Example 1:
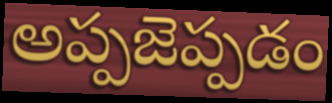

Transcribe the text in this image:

అప్పజెప్పడం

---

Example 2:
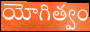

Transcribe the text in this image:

యోగిత్వం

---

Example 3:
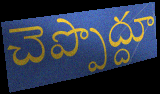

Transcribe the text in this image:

చెప్పొద్దూ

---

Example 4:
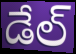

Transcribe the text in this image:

డేల్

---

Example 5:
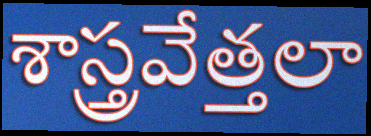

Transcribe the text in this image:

శాస్త్రవేత్తలా